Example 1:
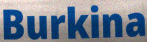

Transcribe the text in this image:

Burkina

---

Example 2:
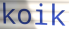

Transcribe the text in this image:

koik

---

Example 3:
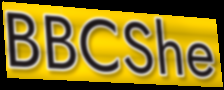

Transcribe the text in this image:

BBCShe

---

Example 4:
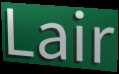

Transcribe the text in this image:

Lair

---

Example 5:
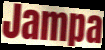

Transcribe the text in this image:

Jampa